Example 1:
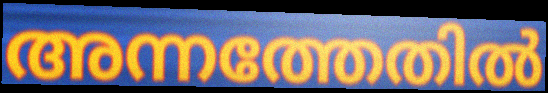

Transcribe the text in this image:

അന്നത്തേതിൽ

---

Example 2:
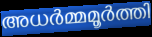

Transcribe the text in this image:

അധർമ്മമൂർത്തി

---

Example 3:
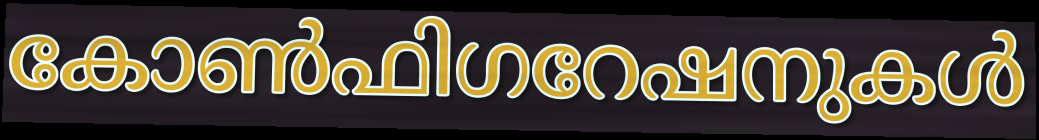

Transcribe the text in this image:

കോൺഫിഗറേഷനുകൾ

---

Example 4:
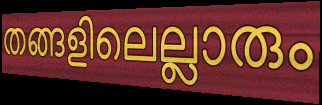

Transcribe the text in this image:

തങ്ങളിലെല്ലാരും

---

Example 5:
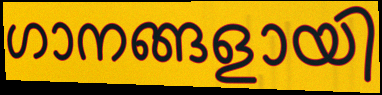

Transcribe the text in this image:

ഗാനങ്ങളായി